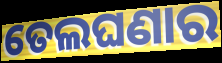
ତେଲଘଣାର